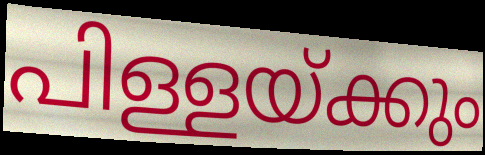
പിള്ളയ്ക്കും